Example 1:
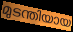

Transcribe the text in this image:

മുടന്തിയായ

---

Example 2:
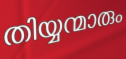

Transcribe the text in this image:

തിയ്യന്മാരും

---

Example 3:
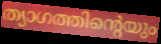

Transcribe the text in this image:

ത്യാഗത്തിന്റെയും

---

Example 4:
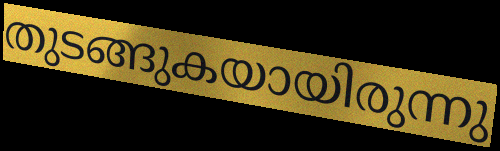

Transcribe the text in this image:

തുടങ്ങുകയായിരുന്നു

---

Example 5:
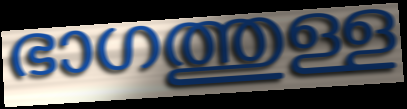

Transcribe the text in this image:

ഭാഗത്തുള്ള